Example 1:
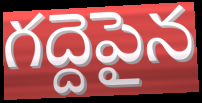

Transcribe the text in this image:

గద్దెపైన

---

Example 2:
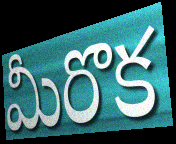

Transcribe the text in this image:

మీరొక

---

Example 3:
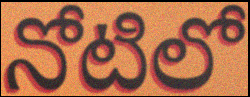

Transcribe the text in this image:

నోటిలో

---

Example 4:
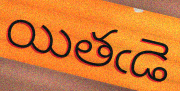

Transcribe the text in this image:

యితఁడె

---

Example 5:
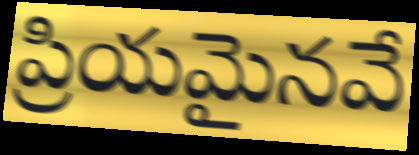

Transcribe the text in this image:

ప్రియమైనవే